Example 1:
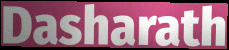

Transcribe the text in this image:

Dasharath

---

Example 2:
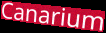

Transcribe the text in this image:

Canarium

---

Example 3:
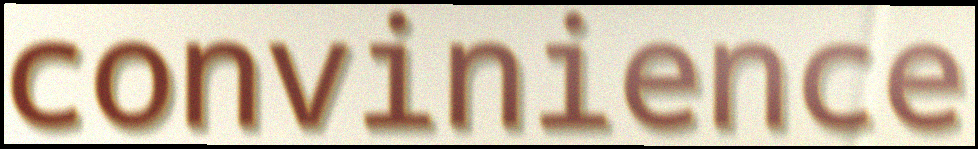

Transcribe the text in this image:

convinience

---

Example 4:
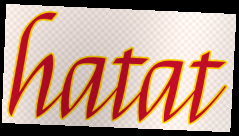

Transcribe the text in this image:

hatat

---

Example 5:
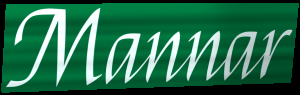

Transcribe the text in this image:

Mannar